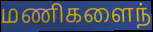
மணிகளைந்